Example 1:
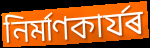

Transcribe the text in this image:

নিৰ্মাণকাৰ্যৰ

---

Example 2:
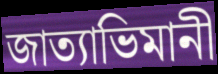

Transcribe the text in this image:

জাত্যাভিমানী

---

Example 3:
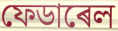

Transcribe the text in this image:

ফেডাৰেল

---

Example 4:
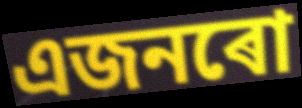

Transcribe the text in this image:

এজনৰো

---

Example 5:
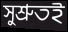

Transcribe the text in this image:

সুশ্ৰুতই